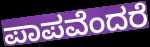
ಪಾಪವೆಂದರೆ